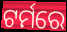
ଟର୍ମରେ